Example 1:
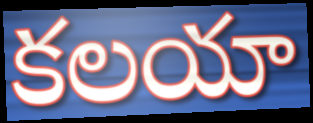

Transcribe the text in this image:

కలయా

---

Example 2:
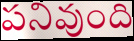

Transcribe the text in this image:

పనివుంది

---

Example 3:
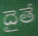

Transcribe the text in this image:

దైతే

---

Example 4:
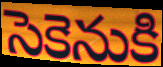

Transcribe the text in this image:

సెకెనుకి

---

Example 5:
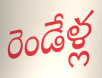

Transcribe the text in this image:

రెండేళ్ల